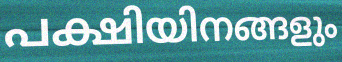
പക്ഷിയിനങ്ങളും